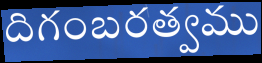
దిగంబరత్వము